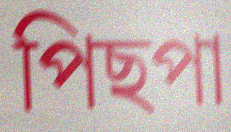
পিছপা